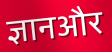
ज्ञानऔर